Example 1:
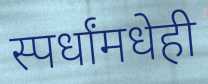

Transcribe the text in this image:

स्पर्धांमधेही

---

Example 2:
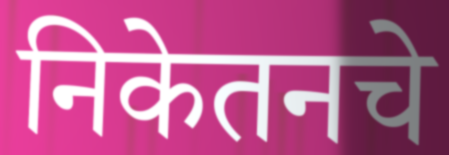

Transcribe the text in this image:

निकेतनचे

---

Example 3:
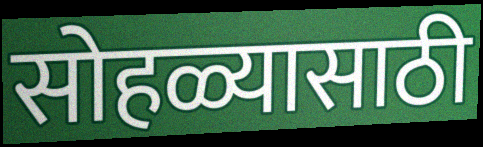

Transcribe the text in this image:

सोहळ्यासाठी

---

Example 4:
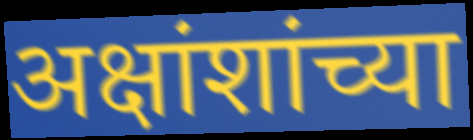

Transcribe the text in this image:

अक्षांशांच्या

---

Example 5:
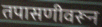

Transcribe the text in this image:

तपासणीवरून